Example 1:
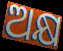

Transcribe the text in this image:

ଅକ୍ଷ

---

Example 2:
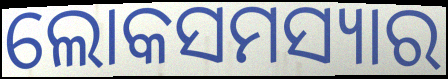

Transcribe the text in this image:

ଲୋକସମସ୍ୟାର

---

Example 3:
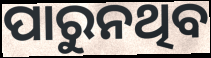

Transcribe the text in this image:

ପାରୁନଥିବ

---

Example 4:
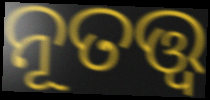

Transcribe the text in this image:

ନୂତତ୍ତ୍ଵ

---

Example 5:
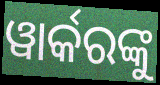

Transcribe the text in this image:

ୱାର୍କରଙ୍କୁ